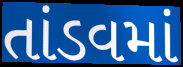
તાંડવમાં